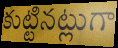
కుట్టినట్లుగా